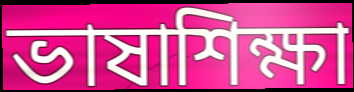
ভাষাশিক্ষা